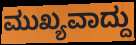
ಮುಖ್ಯವಾದ್ದು